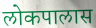
लोकपालास